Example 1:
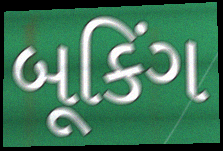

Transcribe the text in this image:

બૂકિંગ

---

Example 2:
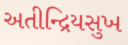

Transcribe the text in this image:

અતીન્દ્રિયસુખ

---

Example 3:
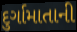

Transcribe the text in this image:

દુર્ગામાતાની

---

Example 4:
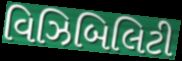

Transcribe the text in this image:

વિઝિબિલિટી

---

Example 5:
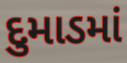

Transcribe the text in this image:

દુમાડમાં